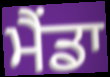
ਮੈਂਡਾ